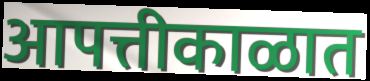
आपत्तीकाळात